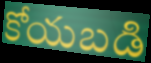
కోయబడి